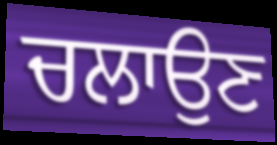
ਚਲਾਉਣ